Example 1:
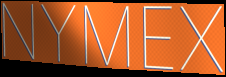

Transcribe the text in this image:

NYMEX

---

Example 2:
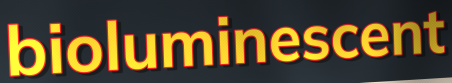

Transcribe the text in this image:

bioluminescent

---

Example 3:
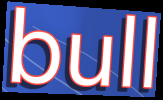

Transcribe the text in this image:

bull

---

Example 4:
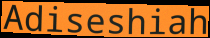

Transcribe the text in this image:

Adiseshiah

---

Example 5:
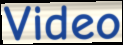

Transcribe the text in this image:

Video